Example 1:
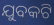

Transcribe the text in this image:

ଯୁବକଟି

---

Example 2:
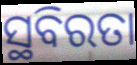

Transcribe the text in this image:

ସ୍ଥବିରତା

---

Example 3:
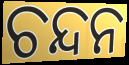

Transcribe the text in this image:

ଚନ୍ଦନ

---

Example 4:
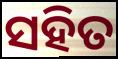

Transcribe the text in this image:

ସହିତ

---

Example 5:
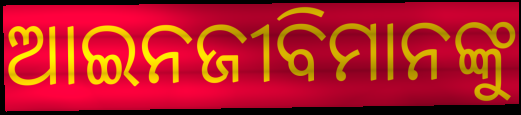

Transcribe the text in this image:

ଆଇନଜୀବିମାନଙ୍କୁ